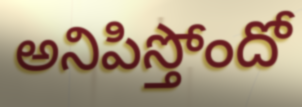
అనిపిస్తోందో